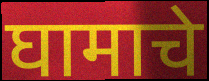
घामाचे